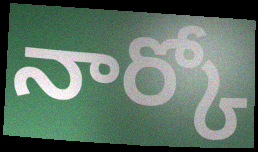
నార్కో